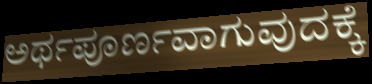
ಅರ್ಥಪೂರ್ಣವಾಗುವುದಕ್ಕೆ